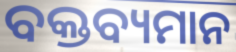
ବକ୍ତବ୍ୟମାନ